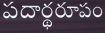
పదార్థరూపం